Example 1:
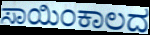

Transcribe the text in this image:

ಸಾಯಿಂಕಾಲದ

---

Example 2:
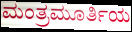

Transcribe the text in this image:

ಮಂತ್ರಮೂರ್ತಿಯ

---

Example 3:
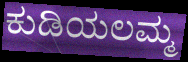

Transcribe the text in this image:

ಕುಡಿಯಲಮ್ಮ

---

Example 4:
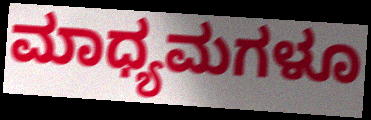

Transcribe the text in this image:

ಮಾಧ್ಯಮಗಳೂ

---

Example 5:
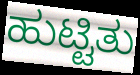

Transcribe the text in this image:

ಹುಟ್ಟಿತು